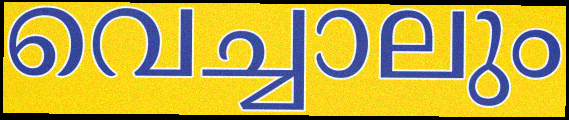
വെച്ചാലും